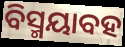
ବିସ୍ମୟାବହ